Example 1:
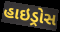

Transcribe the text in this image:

હાઇડ્રોસ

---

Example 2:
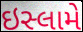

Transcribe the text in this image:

ઇસ્લામે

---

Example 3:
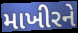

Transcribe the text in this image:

માખીરને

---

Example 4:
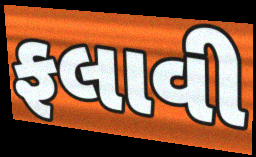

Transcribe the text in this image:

ફલાવી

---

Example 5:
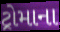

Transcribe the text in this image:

ટ્રોમાના